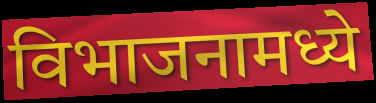
विभाजनामध्ये